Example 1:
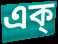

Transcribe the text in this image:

এক্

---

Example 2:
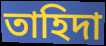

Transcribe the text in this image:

তাহিদা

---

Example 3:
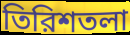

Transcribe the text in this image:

তিরিশতলা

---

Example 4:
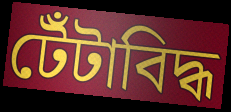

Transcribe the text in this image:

টেঁটাবিদ্ধ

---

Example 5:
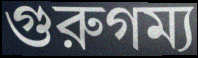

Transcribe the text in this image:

গুরুগম্য